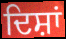
ਦਿਸ਼ਾਂ